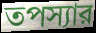
তপস্যার